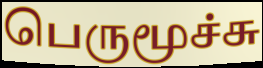
பெருமூச்சு